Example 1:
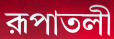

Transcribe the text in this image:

রূপাতলী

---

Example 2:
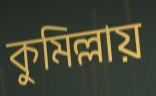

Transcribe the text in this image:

কুমিল্লায়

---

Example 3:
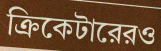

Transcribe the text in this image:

ক্রিকেটারেরও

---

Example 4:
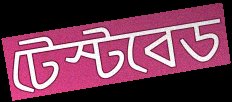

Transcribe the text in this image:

টেস্টবেড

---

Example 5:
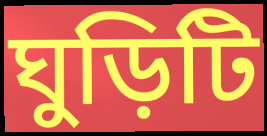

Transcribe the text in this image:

ঘুড়িটি